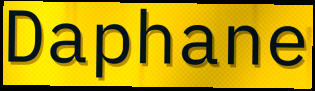
Daphane